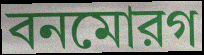
বনমোরগ